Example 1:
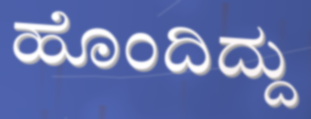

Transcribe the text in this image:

ಹೊಂದಿದ್ದು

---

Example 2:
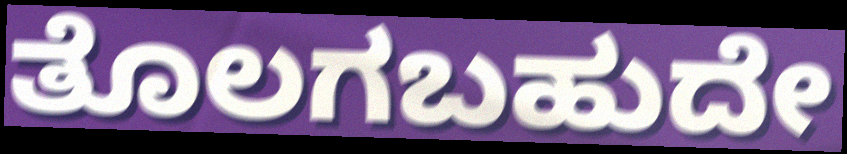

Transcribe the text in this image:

ತೊಲಗಬಹುದೇ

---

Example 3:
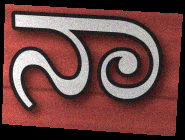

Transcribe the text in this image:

ನಾ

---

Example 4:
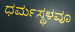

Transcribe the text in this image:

ಧರ್ಮಸ್ಥಳವೂ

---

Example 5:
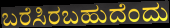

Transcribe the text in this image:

ಬರೆಸಿರಬಹುದೆಂದು